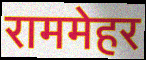
राममेहर